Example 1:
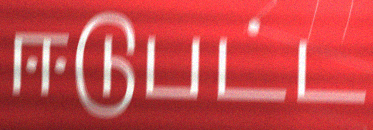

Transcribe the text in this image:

ஈடுபட்ட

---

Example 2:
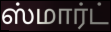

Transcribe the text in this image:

ஸ்மார்ட்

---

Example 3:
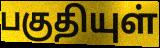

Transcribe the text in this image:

பகுதியுள்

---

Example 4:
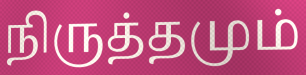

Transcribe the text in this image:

நிருத்தமும்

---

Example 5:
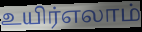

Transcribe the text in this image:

உயிர்எலாம்